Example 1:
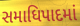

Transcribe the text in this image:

સમાધિપાદમાં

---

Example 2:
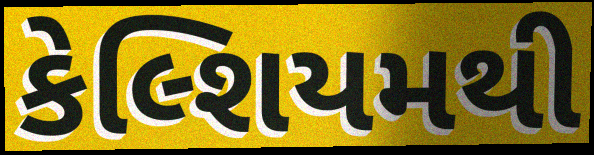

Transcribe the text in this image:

કેલ્શિયમથી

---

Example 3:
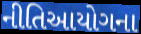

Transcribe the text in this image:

નીતિઆયોગના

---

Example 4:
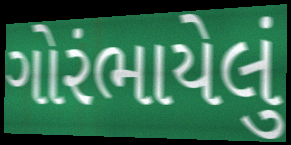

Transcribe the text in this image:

ગોરંભાયેલું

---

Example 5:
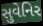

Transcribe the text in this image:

સુવેનિર